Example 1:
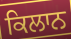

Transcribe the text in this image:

ਕਿਲਾਨ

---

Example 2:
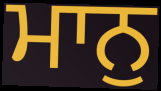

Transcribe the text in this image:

ਮਾਨੁ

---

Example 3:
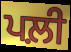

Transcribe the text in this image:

ਪਲ਼ੀ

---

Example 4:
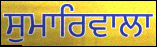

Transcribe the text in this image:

ਸੁਮਾਰਿਵਾਲਾ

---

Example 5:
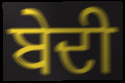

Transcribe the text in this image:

ਬੇਦੀ